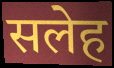
सलेह